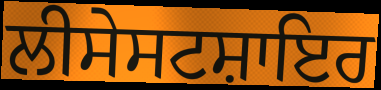
ਲੀਸੇਸਟਸ਼ਾਇਰ